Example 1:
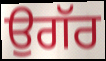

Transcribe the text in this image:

ਉਗੱਰ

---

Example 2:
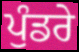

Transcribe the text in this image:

ਪੁੰਡਰੇ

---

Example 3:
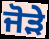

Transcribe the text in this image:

ਜੋਡ਼ੇ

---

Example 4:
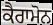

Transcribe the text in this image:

ਕੈਰਾਮੋਨ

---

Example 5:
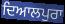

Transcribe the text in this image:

ਦਿਆਲਪੁਰਾ